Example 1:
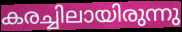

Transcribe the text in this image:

കരച്ചിലായിരുന്നു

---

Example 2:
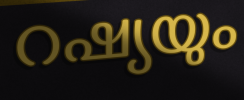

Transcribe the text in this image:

റഷ്യയും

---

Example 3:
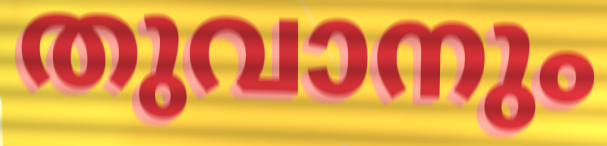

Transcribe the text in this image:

തുവാനും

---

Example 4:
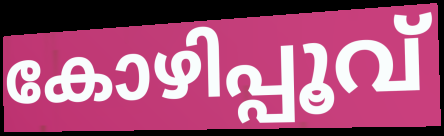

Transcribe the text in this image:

കോഴിപ്പൂവ്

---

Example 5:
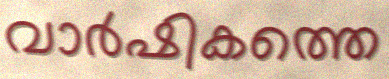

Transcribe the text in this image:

വാർഷികത്തെ